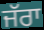
ਜੱਰਾ